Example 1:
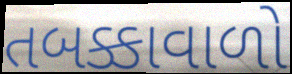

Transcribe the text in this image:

તબક્કાવાળો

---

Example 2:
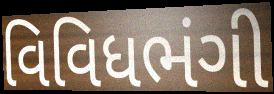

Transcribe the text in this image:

વિવિધભંગી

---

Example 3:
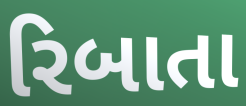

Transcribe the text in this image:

રિબાતા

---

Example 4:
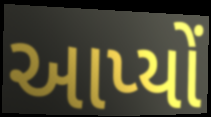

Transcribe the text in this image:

આપ્યોં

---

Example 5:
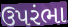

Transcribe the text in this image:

ઉપરંભા